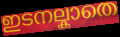
ഇടനല്കാതെ